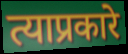
त्याप्रकारे